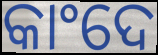
କାଂଦେ